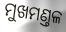
ମୁଖମଣ୍ତଳ